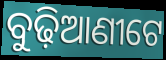
ବୁଢ଼ିଆଣୀଟେ